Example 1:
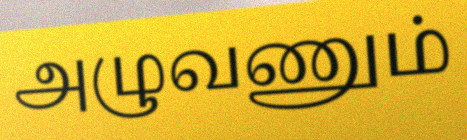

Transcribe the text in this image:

அழுவணும்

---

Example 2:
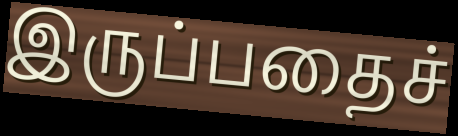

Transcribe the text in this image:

இருப்பதைச்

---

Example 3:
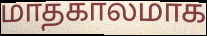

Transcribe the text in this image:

மாதகாலமாக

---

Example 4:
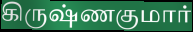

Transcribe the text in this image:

கிருஷ்ணகுமார்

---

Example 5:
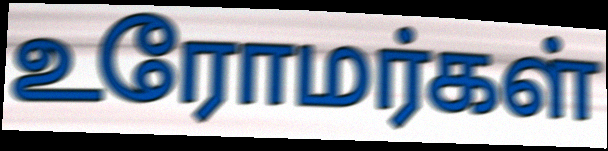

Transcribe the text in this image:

உரோமர்கள்